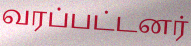
வரப்பட்டனர்